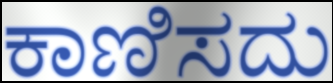
ಕಾಣಿಸದು